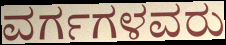
ವರ್ಗಗಳವರು